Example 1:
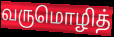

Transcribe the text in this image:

வருமொழித்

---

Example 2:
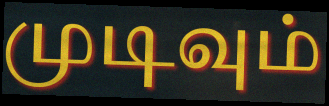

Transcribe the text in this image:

முடிவும்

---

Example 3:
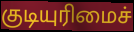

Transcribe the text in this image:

குடியுரிமைச்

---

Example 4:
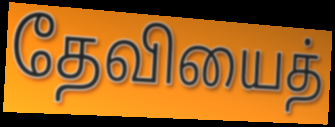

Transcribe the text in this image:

தேவியைத்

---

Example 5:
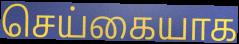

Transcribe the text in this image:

செய்கையாக